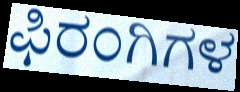
ಫಿರಂಗಿಗಳ